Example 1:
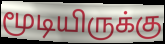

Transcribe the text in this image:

மூடியிருக்கு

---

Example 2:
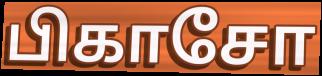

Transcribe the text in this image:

பிகாசோ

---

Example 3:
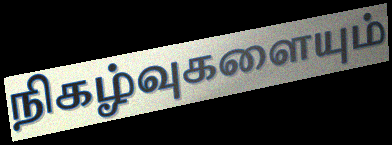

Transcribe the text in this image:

நிகழ்வுகளையும்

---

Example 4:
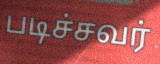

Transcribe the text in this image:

படிச்சவர்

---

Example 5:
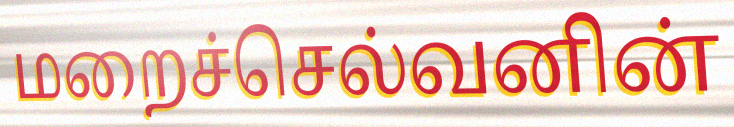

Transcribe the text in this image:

மறைச்செல்வனின்